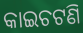
କାଇଚଟଣି